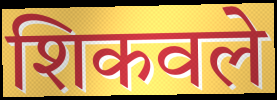
शिकवले